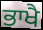
ਭਾਖੈ